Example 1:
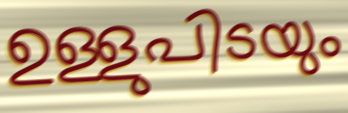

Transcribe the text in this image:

ഉള്ളുപിടയും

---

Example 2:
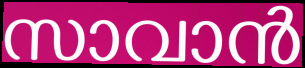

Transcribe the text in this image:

സാവാൻ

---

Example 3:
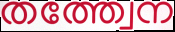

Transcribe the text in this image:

തത്ത്വേന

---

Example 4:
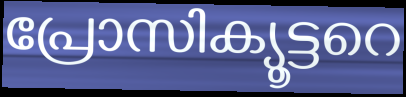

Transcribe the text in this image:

പ്രോസിക്യൂട്ടറെ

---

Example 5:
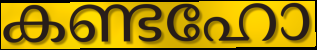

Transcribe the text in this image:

കണ്ടഹോ